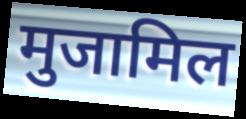
मुजामिल